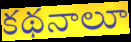
కథనాలూ